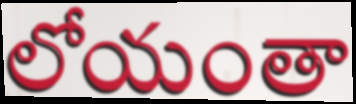
లోయంతా